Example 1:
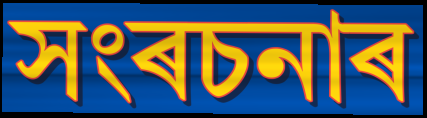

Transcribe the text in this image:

সংৰচনাৰ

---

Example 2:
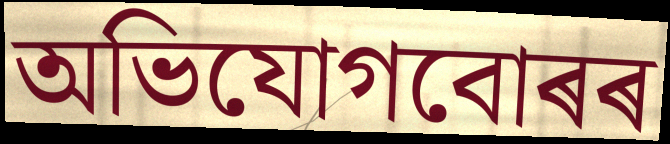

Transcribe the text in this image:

অভিযোগবোৰৰ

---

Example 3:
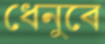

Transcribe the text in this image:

ধেনুৰে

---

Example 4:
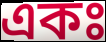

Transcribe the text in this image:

একঃ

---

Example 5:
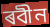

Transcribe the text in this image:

ৰবীন